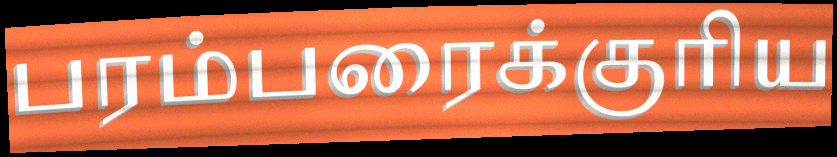
பரம்பரைக்குரிய